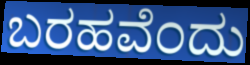
ಬರಹವೆಂದು